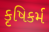
કૃષિકર્મ